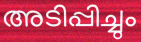
അടിപ്പിച്ചും